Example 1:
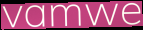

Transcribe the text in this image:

vamwe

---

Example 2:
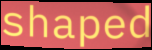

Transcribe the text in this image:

shaped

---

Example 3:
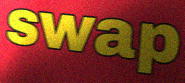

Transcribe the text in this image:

swap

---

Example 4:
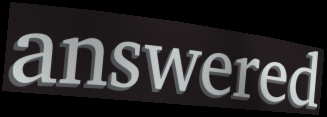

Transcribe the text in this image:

answered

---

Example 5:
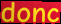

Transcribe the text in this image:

donc